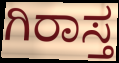
ಗಿರಾಸ್ತ